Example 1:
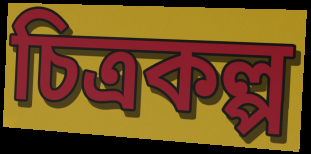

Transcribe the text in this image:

চিত্ৰকল্প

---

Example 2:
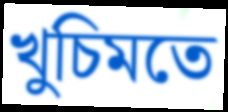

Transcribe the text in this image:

খুচিমতে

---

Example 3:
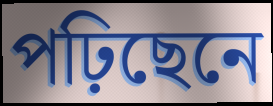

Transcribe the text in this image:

পঢ়িছেনে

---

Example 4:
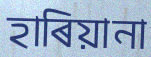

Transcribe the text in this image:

হাৰিয়ানা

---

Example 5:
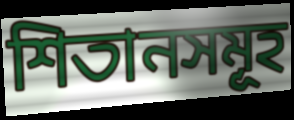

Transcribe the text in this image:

শিতানসমূহ